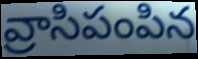
వ్రాసిపంపిన